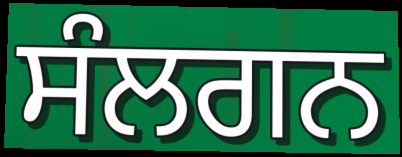
ਸੰਲਗਨ